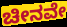
ಚೀನವೇ